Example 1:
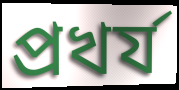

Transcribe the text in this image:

প্রখর্য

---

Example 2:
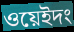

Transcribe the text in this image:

ওয়েইদং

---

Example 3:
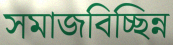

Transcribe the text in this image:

সমাজবিচ্ছিন্ন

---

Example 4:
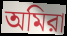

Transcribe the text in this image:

অমিরা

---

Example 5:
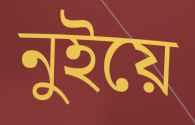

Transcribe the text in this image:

নুইয়ে